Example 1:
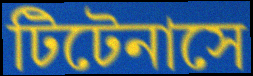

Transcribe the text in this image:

টিটেনাসে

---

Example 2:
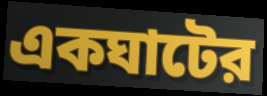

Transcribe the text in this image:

একঘাটের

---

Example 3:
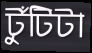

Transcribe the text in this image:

টুঁটিটা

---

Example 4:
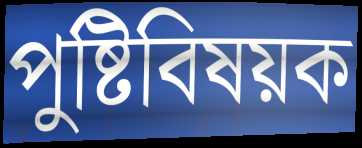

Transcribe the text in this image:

পুষ্টিবিষয়ক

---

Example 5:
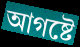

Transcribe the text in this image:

আগষ্টে